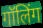
गॉलिंग